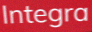
Integra